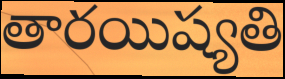
తారయిష్యతి